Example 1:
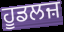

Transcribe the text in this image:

ਹੂਡਲਜ਼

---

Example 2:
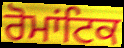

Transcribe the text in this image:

ਰੋਮਾਂਟਿਕ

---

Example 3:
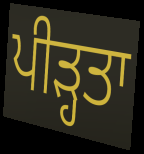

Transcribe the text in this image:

ਪੀੜ੍ਹਤਾ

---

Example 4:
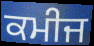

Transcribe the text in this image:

ਕਮੀਜ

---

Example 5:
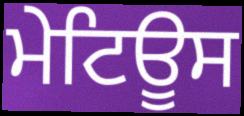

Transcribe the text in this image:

ਮੇਟਿਊਸ